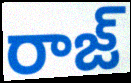
రాజ్